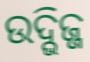
ଉଦ୍ଭିଜ୍ଜ